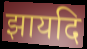
झायदि